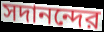
সদানন্দের